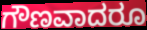
ಗೌಣವಾದರೂ